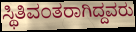
ಸ್ಥಿತಿವಂತರಾಗಿದ್ದವರು